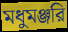
মধুমঞ্জরি